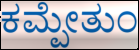
ಕಮ್ಪೇತುಂ